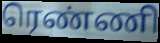
ரெண்ணி